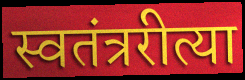
स्वतंत्ररीत्या